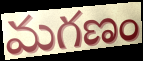
మగణం